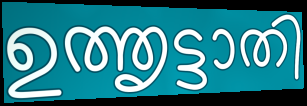
ഉത്തൃട്ടാതി